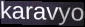
karavyo